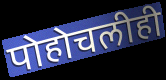
पोहोचलीही